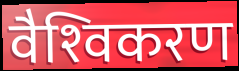
वैश्विकरण